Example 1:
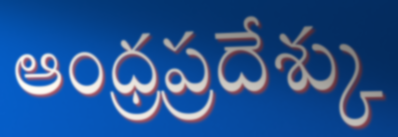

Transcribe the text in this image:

ఆంధ్రప్రదేశ్కు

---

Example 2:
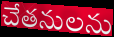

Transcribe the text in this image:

చేతనులను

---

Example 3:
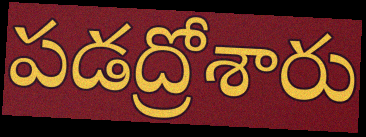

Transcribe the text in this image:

పడద్రోశారు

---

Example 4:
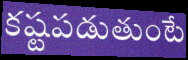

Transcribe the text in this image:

కష్టపడుతుంటే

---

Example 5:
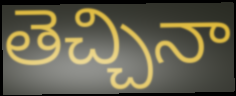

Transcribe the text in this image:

తెచ్చినా